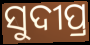
ସୁଦୀପ୍ର